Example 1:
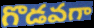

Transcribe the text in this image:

గొడవగా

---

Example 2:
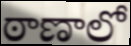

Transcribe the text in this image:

ఠాణాలో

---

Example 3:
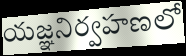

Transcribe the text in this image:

యజ్ఞనిర్వహణలో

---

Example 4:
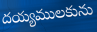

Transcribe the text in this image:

దయ్యములకును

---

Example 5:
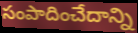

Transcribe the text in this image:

సంపాదించేదాన్ని